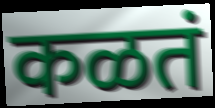
कळतं